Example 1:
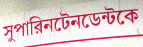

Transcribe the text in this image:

সুপারিনটেনডেন্টকে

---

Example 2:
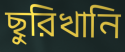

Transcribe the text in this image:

ছুরিখানি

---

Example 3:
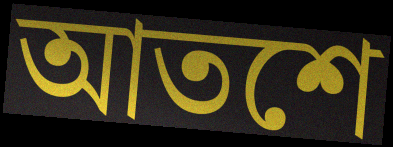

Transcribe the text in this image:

আতশে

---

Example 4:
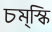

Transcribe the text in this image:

চম্‌স্কি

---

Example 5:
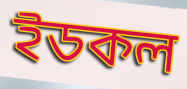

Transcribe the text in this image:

ইডকল